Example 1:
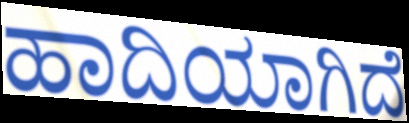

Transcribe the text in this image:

ಹಾದಿಯಾಗಿದೆ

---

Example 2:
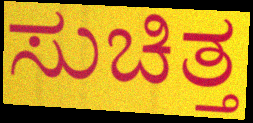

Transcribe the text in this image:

ಸುಚಿತ್ತ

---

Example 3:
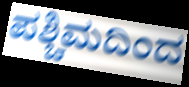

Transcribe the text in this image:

ಪಶ್ಚಿಮದಿಂದ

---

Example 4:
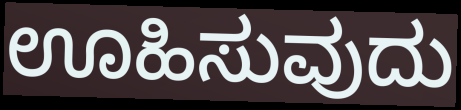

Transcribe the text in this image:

ಊಹಿಸುವುದು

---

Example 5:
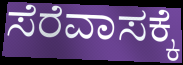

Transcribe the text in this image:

ಸೆರೆವಾಸಕ್ಕೆ